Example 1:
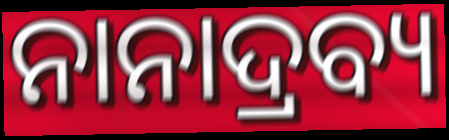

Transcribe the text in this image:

ନାନାଦ୍ରବ୍ୟ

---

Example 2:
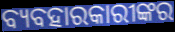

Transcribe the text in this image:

ବ୍ୟବହାରକାରୀଙ୍କର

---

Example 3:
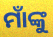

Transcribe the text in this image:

ମାଁଙ୍କୁ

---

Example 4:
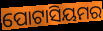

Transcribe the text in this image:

ପୋଟାସିୟମର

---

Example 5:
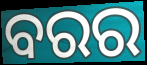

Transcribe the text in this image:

ବରର